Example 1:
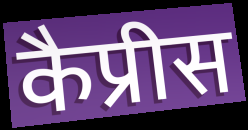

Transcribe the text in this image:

कैप्रीस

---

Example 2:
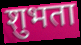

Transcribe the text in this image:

शुभता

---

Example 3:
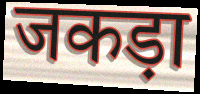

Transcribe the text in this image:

जकड़ा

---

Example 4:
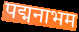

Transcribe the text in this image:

पद्मनाभम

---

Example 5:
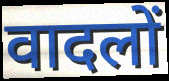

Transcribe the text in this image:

वादलों